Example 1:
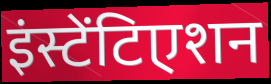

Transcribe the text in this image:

इंस्टेंटिएशन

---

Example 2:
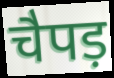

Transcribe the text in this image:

चैपड़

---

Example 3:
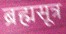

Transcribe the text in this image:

ब्रह्मसूत्र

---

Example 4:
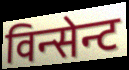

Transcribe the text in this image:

विन्सेन्ट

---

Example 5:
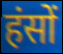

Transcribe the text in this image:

हंसों